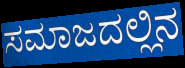
ಸಮಾಜದಲ್ಲಿನ